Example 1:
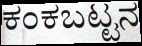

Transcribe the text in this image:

ಕಂಕಬಟ್ಟನ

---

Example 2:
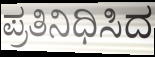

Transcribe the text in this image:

ಪ್ರತಿನಿಧಿಸಿದ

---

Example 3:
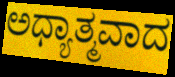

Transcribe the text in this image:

ಅಧ್ಯಾತ್ಮವಾದ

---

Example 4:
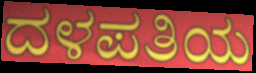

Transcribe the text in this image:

ದಳಪತಿಯ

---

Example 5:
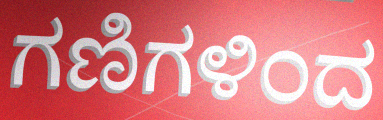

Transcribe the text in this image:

ಗಣಿಗಳಿಂದ